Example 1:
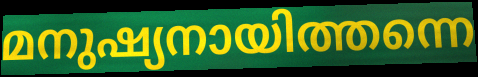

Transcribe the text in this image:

മനുഷ്യനായിത്തന്നെ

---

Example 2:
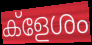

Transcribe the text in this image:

ക്ളേശം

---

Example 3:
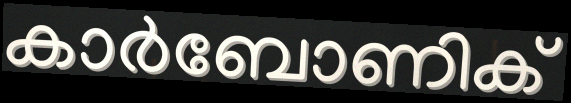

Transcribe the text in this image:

കാർബോണിക്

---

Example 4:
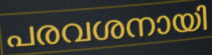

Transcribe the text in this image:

പരവശനായി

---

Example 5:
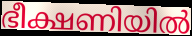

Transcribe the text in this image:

ഭീക്ഷണിയിൽ